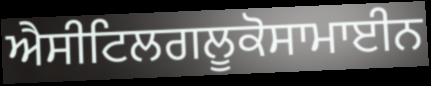
ਐਸੀਟਿਲਗਲੂਕੋਸਾਮਾਈਨ